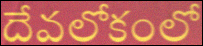
దేవలోకంలో